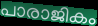
പാരാജികം